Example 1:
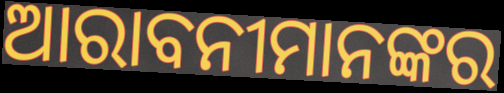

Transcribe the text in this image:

ଆରାବନୀମାନଙ୍କର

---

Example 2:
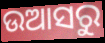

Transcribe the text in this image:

ଉଆସରୁ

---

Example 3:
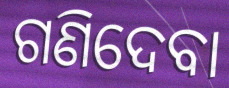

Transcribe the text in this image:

ଗଣିଦେବା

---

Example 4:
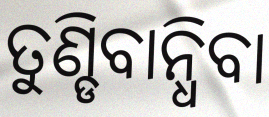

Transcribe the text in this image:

ତୁଣ୍ଡିବାନ୍ଧିବା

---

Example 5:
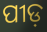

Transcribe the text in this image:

ପୀଡ଼